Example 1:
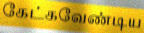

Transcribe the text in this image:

கேட்கவேண்டிய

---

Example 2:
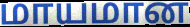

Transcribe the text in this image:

மாயமான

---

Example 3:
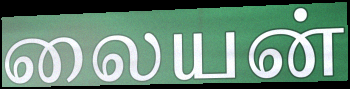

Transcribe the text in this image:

லையன்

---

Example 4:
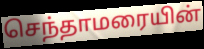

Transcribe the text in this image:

செந்தாமரையின்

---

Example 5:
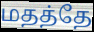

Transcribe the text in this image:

மதத்தே